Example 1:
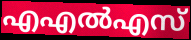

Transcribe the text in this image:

എഎൽഎസ്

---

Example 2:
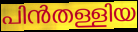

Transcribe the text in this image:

പിൻതള്ളിയ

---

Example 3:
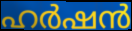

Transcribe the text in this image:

ഹർഷൻ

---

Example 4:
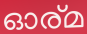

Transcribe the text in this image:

ഓര്മ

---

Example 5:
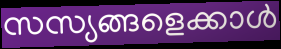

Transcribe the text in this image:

സസ്യങ്ങളെക്കാൾ